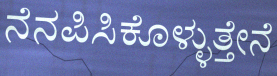
ನೆನಪಿಸಿಕೊಳ್ಳುತ್ತೇನೆ